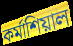
কর্মাশিয়াল